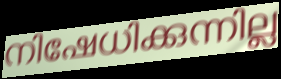
നിഷേധിക്കുന്നില്ല